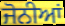
ਜੋਨੀਆਂ